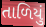
તાળિયું